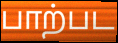
பாற்பட